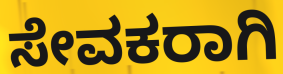
ಸೇವಕರಾಗಿ